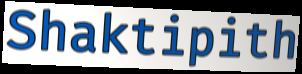
Shaktipith